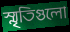
স্মৃতিগুলো